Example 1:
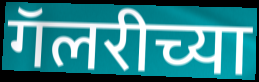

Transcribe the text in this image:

गॅलरीच्या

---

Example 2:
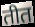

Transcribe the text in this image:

तीत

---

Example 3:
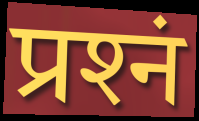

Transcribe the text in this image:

प्रश्‍नं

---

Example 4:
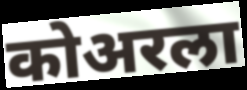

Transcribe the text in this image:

कोअरला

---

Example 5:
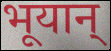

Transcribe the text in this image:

भूयान्